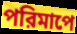
পরিমাপে